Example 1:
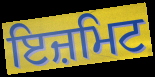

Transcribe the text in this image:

ਇਜ਼ਮਿਟ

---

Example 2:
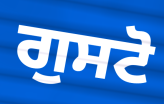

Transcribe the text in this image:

ਗੁਸਟੋ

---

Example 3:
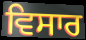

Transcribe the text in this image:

ਵਿਸਾਰ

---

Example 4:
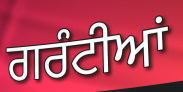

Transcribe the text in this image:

ਗਰੰਟੀਆਂ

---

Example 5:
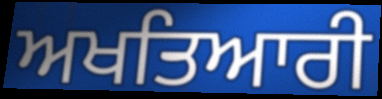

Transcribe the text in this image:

ਅਖਤਿਆਰੀ